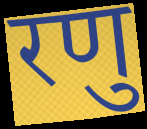
रणु